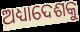
ଅଧ୍ୟାଦେଶକୁ